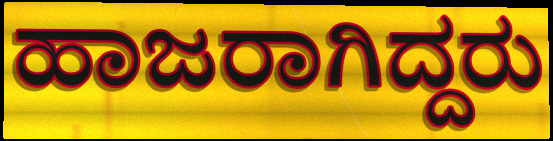
ಹಾಜರಾಗಿದ್ದರು